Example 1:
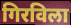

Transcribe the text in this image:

गिरविला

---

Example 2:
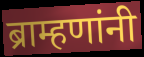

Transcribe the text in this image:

ब्राम्हणांनी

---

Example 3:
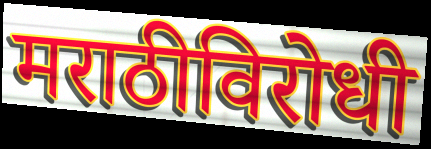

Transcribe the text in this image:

मराठीविरोधी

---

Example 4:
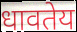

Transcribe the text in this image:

धावतेय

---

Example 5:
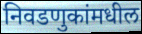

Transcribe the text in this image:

निवडणुकांमधील